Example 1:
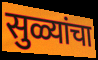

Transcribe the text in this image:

सुळ्यांचा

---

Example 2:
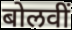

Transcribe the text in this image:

बोलवीं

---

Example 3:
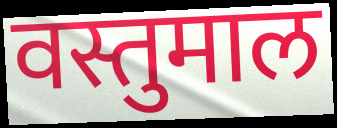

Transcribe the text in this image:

वस्तुमाल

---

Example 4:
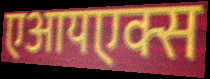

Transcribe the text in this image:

एआयएक्स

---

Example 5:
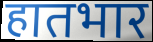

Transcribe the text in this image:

हातभार